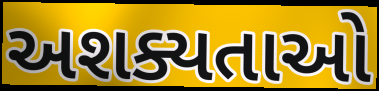
અશક્યતાઓ